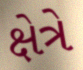
ક્ષેત્રે